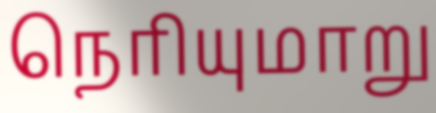
நெரியுமாறு